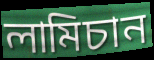
লামিচান